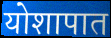
योशापात